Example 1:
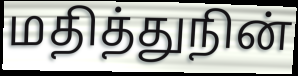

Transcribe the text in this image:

மதித்துநின்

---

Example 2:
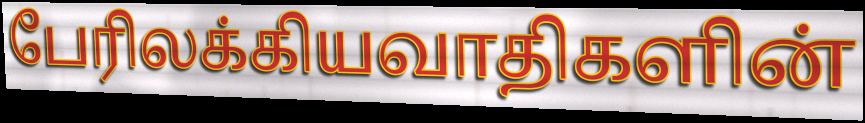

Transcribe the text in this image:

பேரிலக்கியவாதிகளின்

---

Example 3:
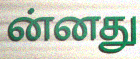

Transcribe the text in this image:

ன்னது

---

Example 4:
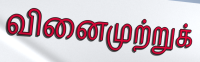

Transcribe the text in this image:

வினைமுற்றுக்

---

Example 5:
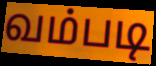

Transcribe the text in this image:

வம்படி